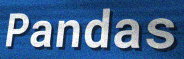
Pandas